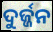
ଦୁର୍ଜ୍ଜନ